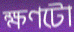
ক্ষণটো